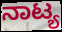
ನಾಟ್ಯ